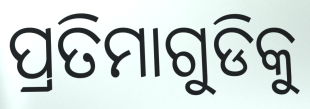
ପ୍ରତିମାଗୁଡିକୁ